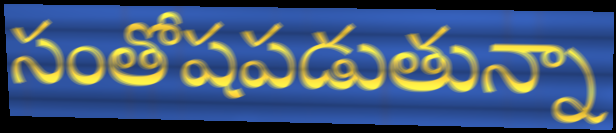
సంతోషపడుతున్నా